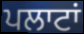
ਪਲਾਟਾਂ